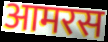
आमरस